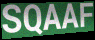
SQAAF